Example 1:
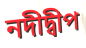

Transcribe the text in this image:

নদীদ্বীপ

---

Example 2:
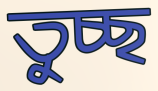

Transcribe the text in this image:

তুচ্ছ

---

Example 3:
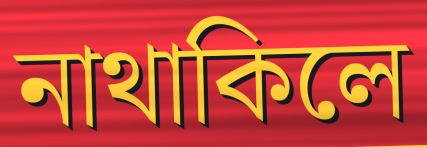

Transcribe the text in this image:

নাথাকিলে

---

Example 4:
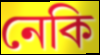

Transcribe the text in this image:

নেকি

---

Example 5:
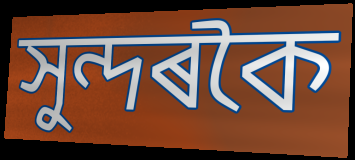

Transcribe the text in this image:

সুন্দৰকৈ